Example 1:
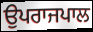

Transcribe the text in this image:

ਉਪਰਾਜਪਾਲ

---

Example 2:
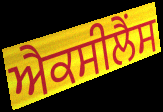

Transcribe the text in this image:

ਐਕਸੀਲੈਂਸ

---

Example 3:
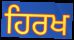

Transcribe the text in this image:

ਹਿਰਖ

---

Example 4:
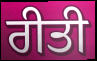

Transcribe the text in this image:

ਰੀਤੀ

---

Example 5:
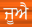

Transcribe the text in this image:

ਜੂਐ